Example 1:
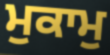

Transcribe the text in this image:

ਮੁਕਾਮੁ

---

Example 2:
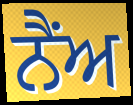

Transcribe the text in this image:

ਨੈਂਅ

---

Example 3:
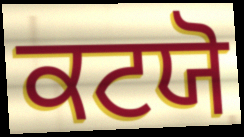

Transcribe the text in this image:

ਕਟਯੋ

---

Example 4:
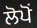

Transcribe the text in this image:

ਲੋਪੋਂ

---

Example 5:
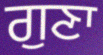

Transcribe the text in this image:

ਗੁਣਾ